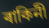
ৰাকিনী